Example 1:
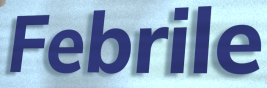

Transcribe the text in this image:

Febrile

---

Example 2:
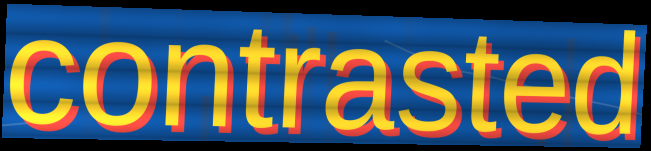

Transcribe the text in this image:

contrasted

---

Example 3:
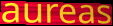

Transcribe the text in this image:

aureas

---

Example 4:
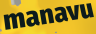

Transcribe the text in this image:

manavu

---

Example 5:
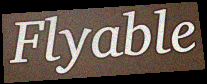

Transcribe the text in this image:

Flyable